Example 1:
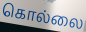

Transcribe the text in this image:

கொல்லை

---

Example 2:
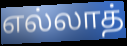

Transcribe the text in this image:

எல்லாத்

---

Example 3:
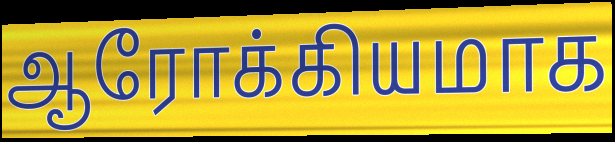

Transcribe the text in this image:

ஆரோக்கியமாக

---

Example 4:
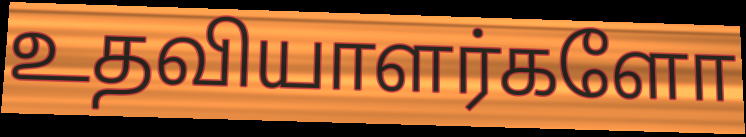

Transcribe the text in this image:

உதவியாளர்களோ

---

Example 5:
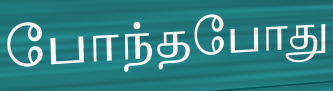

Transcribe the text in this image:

போந்தபோது